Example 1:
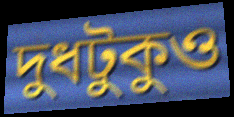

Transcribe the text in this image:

দুধটুকুও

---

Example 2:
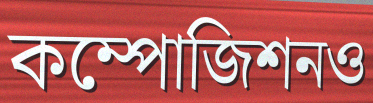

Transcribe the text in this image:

কম্পোজিশনও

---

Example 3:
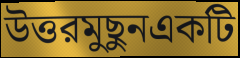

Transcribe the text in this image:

উত্তরমুছুনএকটি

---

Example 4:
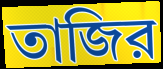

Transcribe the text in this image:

তাজির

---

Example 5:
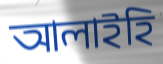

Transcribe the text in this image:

আলাইহি